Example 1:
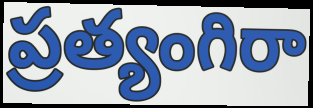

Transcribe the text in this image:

ప్రత్యంగిరా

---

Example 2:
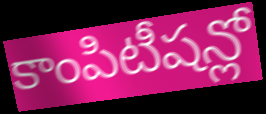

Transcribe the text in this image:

కాంపిటీషన్లో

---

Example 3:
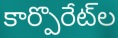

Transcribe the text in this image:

కార్పొరేట్‌ల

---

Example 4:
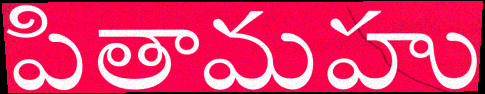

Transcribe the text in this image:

పితామహు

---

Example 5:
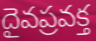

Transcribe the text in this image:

దైవప్రవక్త